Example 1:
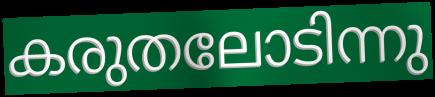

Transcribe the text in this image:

കരുതലോടിന്നു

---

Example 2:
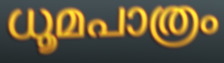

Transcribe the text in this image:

ധൂമപാത്രം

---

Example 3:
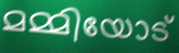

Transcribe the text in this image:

മമ്മിയോട്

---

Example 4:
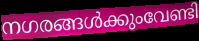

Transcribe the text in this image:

നഗരങ്ങൾക്കുംവേണ്ടി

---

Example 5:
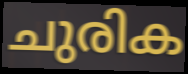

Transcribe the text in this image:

ചുരിക